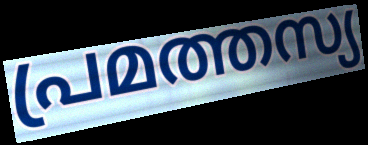
പ്രമത്തസ്യ